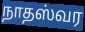
நாதஸ்வர